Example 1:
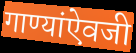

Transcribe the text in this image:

गाण्यांऐवजी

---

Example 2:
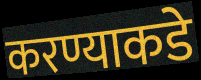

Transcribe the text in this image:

करण्याकडे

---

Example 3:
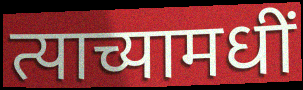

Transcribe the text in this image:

त्याच्यामधीं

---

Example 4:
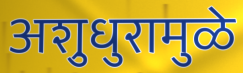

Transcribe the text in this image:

अश्रुधुरामुळे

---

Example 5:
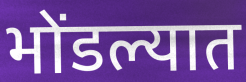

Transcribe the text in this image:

भोंडल्यात